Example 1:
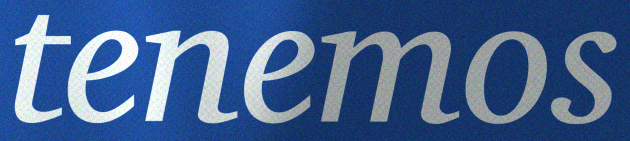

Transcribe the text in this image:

tenemos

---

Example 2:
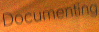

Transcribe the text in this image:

Documenting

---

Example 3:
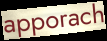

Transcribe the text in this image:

apporach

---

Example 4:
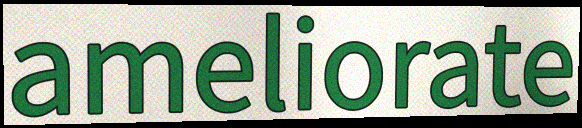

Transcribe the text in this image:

ameliorate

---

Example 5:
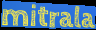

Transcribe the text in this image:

mitrala